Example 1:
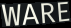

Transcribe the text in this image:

WARE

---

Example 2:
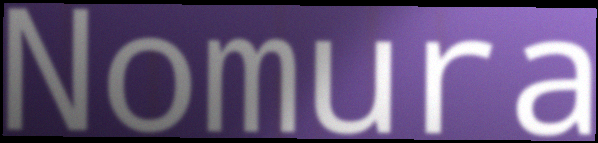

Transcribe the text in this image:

Nomura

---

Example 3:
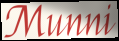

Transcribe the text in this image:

Munni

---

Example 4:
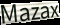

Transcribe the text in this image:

Mazax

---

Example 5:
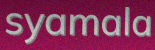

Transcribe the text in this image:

syamala